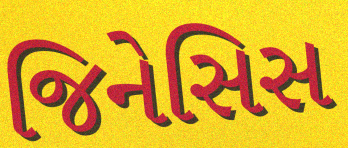
જિનેસિસ